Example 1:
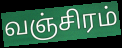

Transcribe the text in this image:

வஞ்சிரம்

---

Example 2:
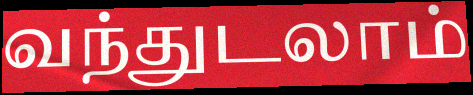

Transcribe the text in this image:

வந்துடலாம்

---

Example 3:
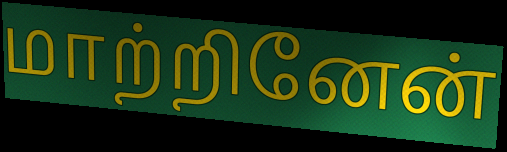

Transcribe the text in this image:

மாற்றினேன்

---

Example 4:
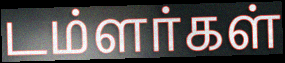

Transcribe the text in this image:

டம்ளர்கள்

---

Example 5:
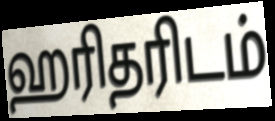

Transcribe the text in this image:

ஹரிதரிடம்